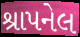
શ્રાપનેલ